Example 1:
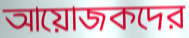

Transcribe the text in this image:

আয়োজকদের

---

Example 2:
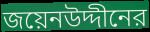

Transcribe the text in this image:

জয়েনউদ্দীনের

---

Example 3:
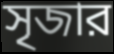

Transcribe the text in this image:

সৃজার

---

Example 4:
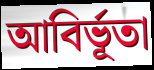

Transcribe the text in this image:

আবির্ভূতা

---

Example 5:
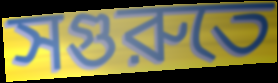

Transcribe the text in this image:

সগুরুতে